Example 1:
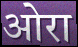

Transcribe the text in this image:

ओरा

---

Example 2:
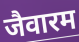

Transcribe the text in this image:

जैवारम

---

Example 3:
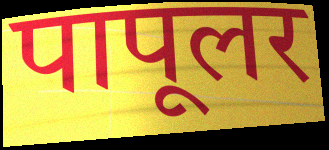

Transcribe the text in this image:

पापूलर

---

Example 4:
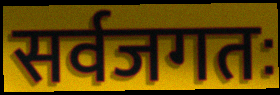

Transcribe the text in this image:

सर्वजगतः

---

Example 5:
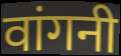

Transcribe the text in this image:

वांगनी